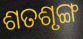
ଶତଶୃଙ୍ଗ